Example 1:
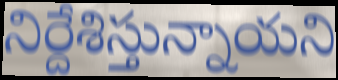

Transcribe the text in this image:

నిర్దేశిస్తున్నాయని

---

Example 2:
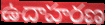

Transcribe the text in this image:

ఉదాహరణ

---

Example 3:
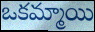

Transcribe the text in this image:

ఒకమ్మాయి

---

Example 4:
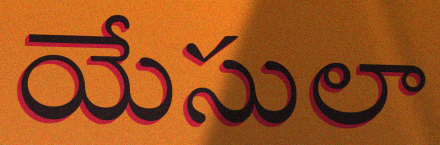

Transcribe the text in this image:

యేసులా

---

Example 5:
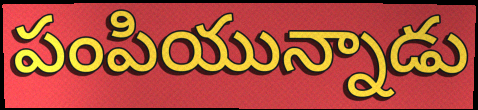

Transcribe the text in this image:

పంపియున్నాడు